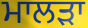
ਮਾਲੜਾ